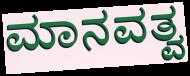
ಮಾನವತ್ವ